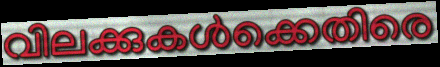
വിലക്കുകൾക്കെതിരെ